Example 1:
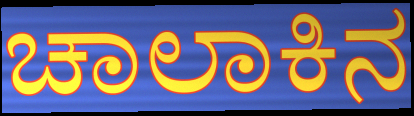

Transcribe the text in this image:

ಚಾಲಾಕಿನ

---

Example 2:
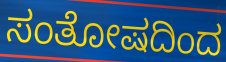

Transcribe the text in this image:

ಸಂತೋಷದಿಂದ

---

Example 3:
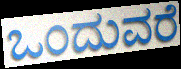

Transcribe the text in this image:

ಒಂದುವರೆ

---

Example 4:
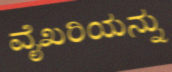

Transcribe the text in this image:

ವೈಖರಿಯನ್ನು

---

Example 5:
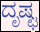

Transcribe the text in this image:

ದೃಷ್ಟ